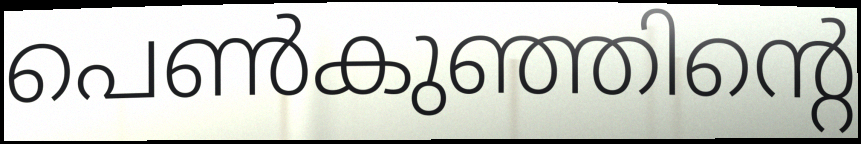
പെൺകുഞ്ഞിന്റെ